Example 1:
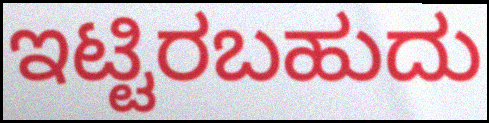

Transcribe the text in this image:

ಇಟ್ಟಿರಬಹುದು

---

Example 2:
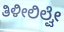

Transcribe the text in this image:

ತಿಳೀಲಿಲ್ವೇ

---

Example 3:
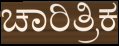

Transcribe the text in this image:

ಚಾರಿತ್ರಿಕ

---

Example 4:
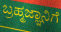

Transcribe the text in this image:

ಬ್ರಹ್ಮಜ್ಞಾನಿಗೆ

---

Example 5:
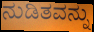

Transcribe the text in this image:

ನುಡಿತವನ್ನು